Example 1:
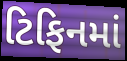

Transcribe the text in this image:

ટિફિનમાં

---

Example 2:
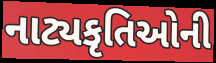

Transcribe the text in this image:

નાટ્યકૃતિઓની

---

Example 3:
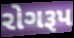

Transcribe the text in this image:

રોગરૂપ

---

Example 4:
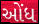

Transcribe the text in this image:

ઓંધ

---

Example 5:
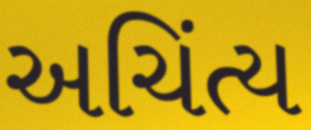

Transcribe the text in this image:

અચિંત્ય